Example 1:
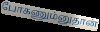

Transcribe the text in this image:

போகணும்னுதான்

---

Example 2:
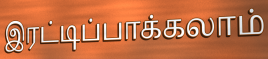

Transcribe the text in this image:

இரட்டிப்பாக்கலாம்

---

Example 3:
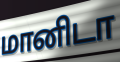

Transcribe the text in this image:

மானிடா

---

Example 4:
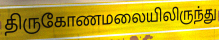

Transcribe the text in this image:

திருகோணமலையிலிருந்து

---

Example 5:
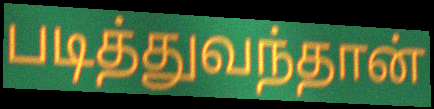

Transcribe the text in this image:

படித்துவந்தான்